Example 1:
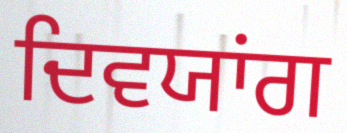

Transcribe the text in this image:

ਦਿਵਯਾਂਗ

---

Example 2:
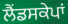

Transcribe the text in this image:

ਲੈਂਡਸਕੇਪਾਂ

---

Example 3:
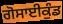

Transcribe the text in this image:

ਗੋਸਾਈਕੁੰਡ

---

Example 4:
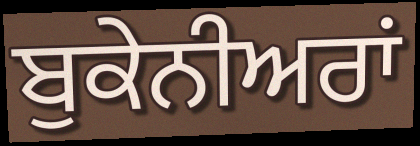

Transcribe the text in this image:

ਬੁਕੇਨੀਅਰਾਂ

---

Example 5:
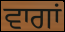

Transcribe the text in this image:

ਵਾਗਾਂ